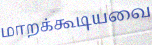
மாறக்கூடியவை